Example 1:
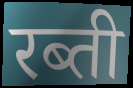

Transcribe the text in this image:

रब्ती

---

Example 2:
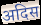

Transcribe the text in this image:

अदिस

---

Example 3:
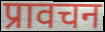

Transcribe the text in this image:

प्रावचन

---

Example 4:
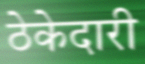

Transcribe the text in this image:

ठेकेदारी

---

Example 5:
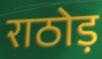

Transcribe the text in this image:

राठोड़